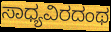
ಸಾಧ್ಯವಿರದಂಥ